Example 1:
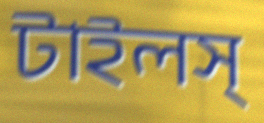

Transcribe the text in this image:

টাইলস্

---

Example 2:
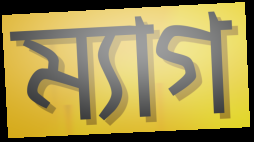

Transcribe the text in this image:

ম্যাগ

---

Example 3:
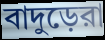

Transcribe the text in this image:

বাদুড়েরা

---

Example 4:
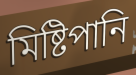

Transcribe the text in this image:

মিষ্টিপানি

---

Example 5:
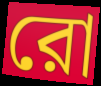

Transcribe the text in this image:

রো